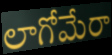
లాగోమేరా